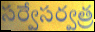
సర్వేసర్వత్ర